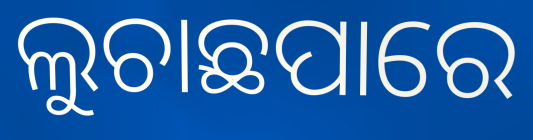
ଲୁଚାଛପାରେ